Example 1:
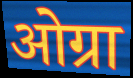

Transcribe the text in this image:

ओग्रा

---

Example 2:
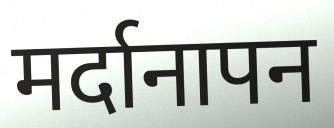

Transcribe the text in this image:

मर्दानापन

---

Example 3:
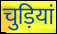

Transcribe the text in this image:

चुड़ियां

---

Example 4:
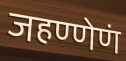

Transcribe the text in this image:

जहण्णेणं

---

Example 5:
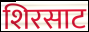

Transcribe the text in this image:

शिरसाट